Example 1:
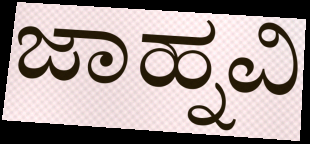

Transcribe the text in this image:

ಜಾಹ್ನವಿ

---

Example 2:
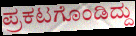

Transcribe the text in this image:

ಪ್ರಕಟಗೊಂಡಿದ್ದು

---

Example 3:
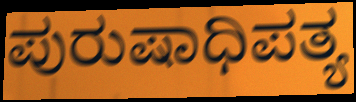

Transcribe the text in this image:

ಪುರುಷಾಧಿಪತ್ಯ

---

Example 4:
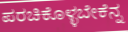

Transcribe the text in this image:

ಪರಚಿಕೊಳ್ಳಬೇಕೆನ್ನ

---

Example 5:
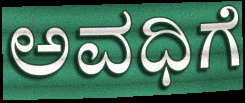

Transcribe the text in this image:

ಅವಧಿಗೆ